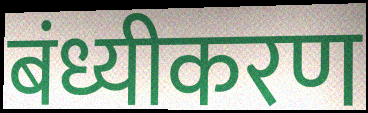
बंध्यीकरण